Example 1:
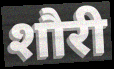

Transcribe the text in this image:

शौरी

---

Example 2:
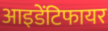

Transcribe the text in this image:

आइडेंटिफायर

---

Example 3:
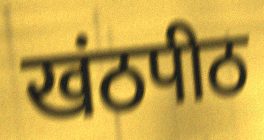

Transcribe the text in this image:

खंठपीठ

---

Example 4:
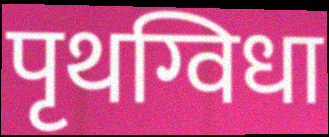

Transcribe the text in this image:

पृथग्विधा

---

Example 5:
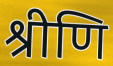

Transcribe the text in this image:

श्रीणि